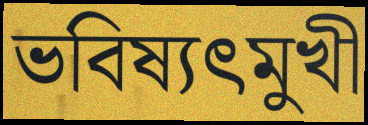
ভবিষ্যৎমুখী